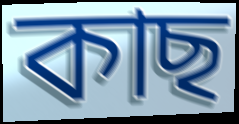
কাছ